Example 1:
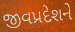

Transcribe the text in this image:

જીવપ્રદેશને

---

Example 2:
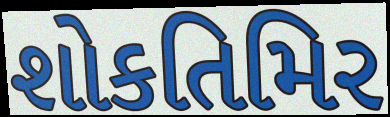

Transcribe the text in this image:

શોકતિમિર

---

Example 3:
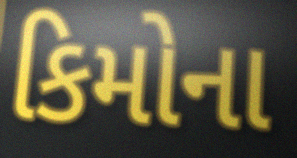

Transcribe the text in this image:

કિમોના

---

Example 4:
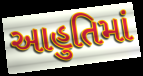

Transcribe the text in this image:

આહુતિમાં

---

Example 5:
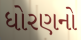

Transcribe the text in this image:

ધોરણનો